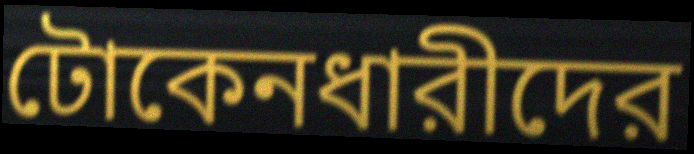
টোকেনধারীদের